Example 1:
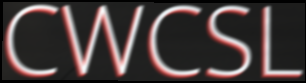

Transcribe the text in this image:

CWCSL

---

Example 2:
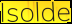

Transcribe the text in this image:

Isolde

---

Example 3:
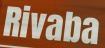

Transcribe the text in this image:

Rivaba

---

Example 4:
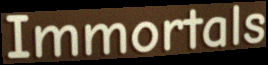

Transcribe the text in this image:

Immortals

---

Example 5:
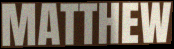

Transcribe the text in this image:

MATTHEW